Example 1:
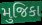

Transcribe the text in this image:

મુજિકા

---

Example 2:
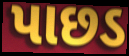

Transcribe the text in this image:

પાછડ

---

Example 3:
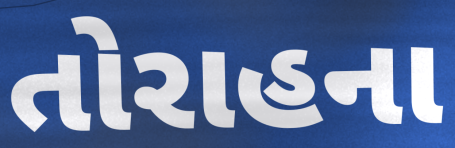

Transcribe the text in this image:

તોરાહના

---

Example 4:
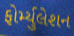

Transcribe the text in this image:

ફોર્મ્યુલેશન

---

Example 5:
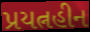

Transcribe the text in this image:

પ્રયત્નહીન